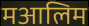
मआलिम